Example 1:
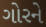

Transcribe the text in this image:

ગોરને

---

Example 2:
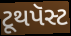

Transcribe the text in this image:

ટૂથપૅસ્ટ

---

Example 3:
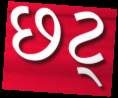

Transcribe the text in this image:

છટ્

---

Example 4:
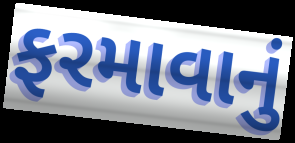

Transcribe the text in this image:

ફરમાવાનું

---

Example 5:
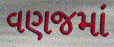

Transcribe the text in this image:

વણજમાં